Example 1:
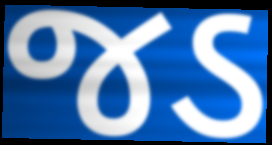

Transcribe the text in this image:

જડ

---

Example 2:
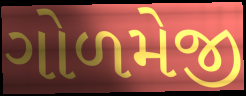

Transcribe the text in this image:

ગોળમેજી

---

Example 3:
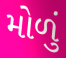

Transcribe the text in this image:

મોળું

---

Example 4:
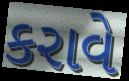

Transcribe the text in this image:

કરાવે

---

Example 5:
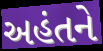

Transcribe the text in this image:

અહંતને